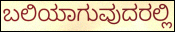
ಬಲಿಯಾಗುವುದರಲ್ಲಿ